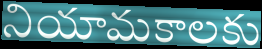
నియామకాలకు